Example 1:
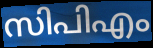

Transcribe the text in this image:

സിപിഎം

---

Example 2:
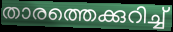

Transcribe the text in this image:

താരത്തെക്കുറിച്ച്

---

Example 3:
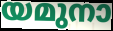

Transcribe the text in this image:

യമുനാ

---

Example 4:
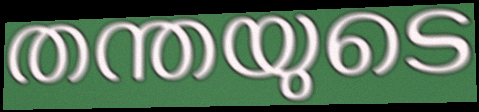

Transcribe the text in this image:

തന്തയുടെ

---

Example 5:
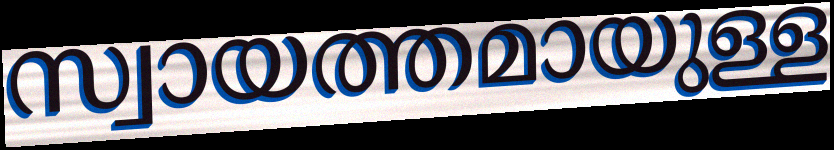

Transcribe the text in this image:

സ്വായത്തമായുള്ള